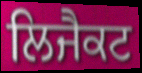
ਲਿਜੈਕਟ